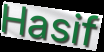
Hasif